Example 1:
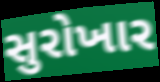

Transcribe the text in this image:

સુરોખાર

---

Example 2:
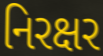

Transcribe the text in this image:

નિરક્ષર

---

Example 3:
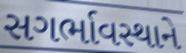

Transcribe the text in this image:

સગર્ભાવસ્થાને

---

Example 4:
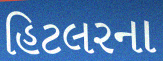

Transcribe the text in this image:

હિટલરના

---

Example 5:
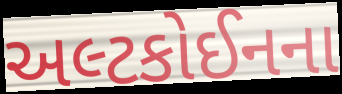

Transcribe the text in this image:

અલ્ટકોઈનના